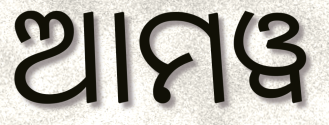
ଆମୱ